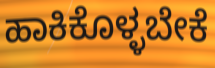
ಹಾಕಿಕೊಳ್ಳಬೇಕೆ